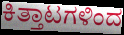
ಕಿತ್ತಾಟಗಳಿಂದ